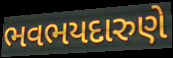
ભવભયદારુણે